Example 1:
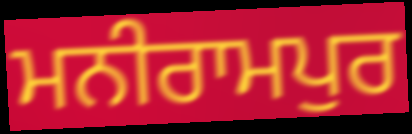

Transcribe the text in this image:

ਮਨੀਰਾਮਪੁਰ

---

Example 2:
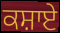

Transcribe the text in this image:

ਕਸ਼ਾਏ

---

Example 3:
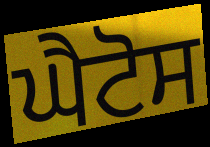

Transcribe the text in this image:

ਘੈਟੋਸ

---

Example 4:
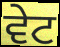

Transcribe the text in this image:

ਵੇਟ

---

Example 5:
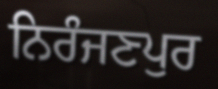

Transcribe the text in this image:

ਨਿਰੰਜਣਪੁਰ